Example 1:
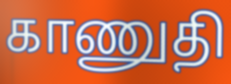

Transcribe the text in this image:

காணுதி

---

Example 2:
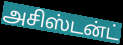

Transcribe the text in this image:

அசிஸ்டன்ட்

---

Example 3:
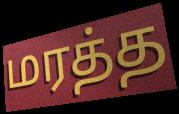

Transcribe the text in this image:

மரத்த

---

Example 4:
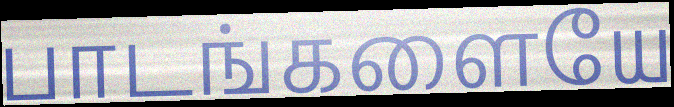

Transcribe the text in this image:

பாடங்களையே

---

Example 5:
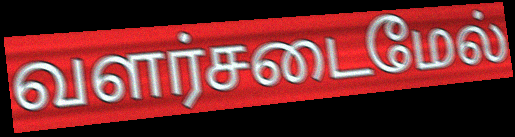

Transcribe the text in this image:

வளர்சடைமேல்